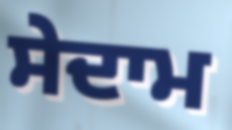
ਸੇਦਾਮ